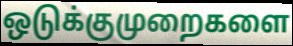
ஒடுக்குமுறைகளை